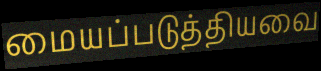
மையப்படுத்தியவை